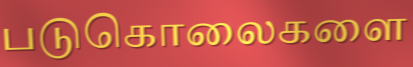
படுகொலைகளை